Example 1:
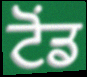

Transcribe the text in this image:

ਟੋਂਡ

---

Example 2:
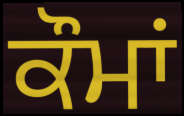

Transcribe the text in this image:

ਕੌਮਾਂ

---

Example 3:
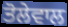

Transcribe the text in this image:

ਤੋਲੇਵਾਲ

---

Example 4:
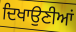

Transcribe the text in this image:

ਦਿਖਾਉਣੀਆਂ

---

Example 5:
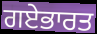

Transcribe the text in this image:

ਗਏਭਾਰਤ